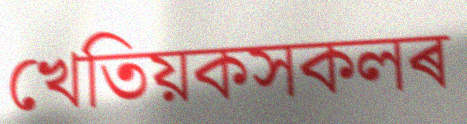
খেতিয়কসকলৰ